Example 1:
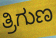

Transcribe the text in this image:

ತ್ರಿಗುಣ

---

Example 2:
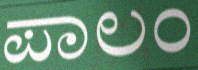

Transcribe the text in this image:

ಪಾಲಂ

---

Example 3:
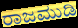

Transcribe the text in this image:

ರಾಜಮುಡಿ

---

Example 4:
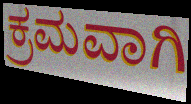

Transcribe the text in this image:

ಕ್ರಮವಾಗಿ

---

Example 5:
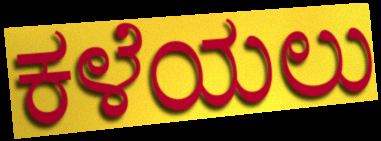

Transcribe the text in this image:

ಕಳೆಯಲು